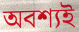
অবশ্যই